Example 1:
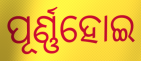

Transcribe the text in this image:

ପୂର୍ଣ୍ଣହୋଇ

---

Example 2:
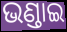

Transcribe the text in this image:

ଭଣ୍ଡାଇ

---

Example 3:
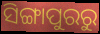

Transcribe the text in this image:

ସିଙ୍ଗାପୁରରୁ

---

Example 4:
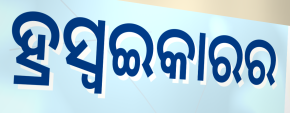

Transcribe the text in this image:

ହ୍ରସ୍ୱଇକାରର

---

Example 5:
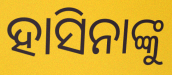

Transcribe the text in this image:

ହାସିନାଙ୍କୁ